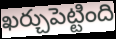
ఖర్చుపెట్టింది